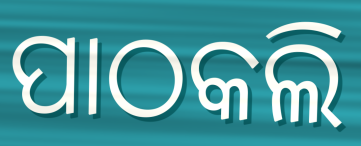
ପାଠକଲି